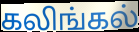
கலிங்கல்